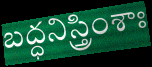
బద్ధనిస్త్రింశాః